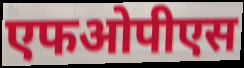
एफओपीएस